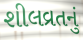
શીલવ્રતનું